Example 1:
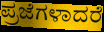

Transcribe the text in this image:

ಪ್ರಜೆಗಳಾದರೆ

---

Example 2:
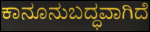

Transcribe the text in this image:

ಕಾನೂನುಬದ್ಧವಾಗಿದೆ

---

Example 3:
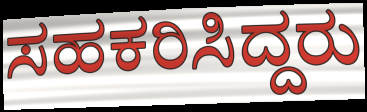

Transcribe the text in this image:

ಸಹಕರಿಸಿದ್ದರು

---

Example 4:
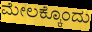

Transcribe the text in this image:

ಮೇಲಕ್ಕೊಂದು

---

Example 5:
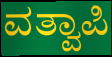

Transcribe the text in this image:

ವತ್ವಾಪಿ